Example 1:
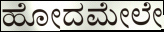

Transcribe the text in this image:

ಹೋದಮೇಲೇ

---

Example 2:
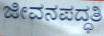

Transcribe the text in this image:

ಜೀವನಪದ್ಧತಿ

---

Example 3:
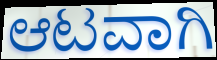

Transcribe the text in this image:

ಆಟವಾಗಿ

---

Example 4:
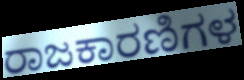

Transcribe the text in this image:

ರಾಜಕಾರಣಿಗಳ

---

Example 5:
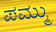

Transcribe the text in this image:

ಪಮ್ಮು